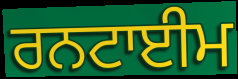
ਰਨਟਾਈਮ